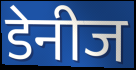
डेनीज